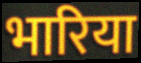
भारिया